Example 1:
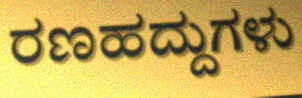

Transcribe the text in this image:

ರಣಹದ್ದುಗಳು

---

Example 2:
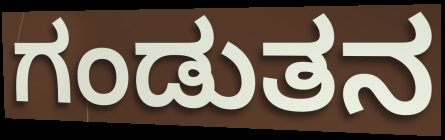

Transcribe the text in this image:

ಗಂಡುತನ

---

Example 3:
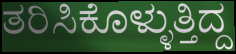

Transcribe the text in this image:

ತರಿಸಿಕೊಳ್ಳುತ್ತಿದ್ದ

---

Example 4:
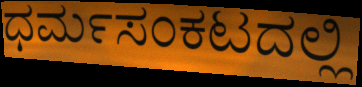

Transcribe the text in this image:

ಧರ್ಮಸಂಕಟದಲ್ಲಿ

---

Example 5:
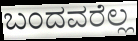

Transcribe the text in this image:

ಬಂದವರೆಲ್ಲ